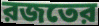
রজতের